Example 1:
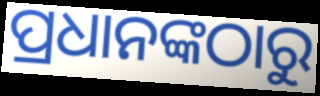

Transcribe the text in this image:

ପ୍ରଧାନଙ୍କଠାରୁ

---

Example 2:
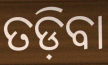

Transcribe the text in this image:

ତଡ଼ିବା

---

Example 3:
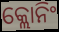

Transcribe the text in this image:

କ୍ଲୋନିଂ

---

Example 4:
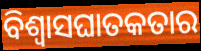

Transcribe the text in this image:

ବିଶ୍ୱାସଘାତକତାର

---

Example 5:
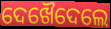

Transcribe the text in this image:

ଦେଖୈଦେଲେ